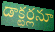
డాక్టర్లనూ